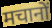
मचानों